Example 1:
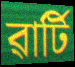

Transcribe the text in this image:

ৱাৰ্টি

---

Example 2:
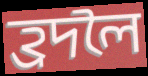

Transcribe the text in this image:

হ্ৰদলৈ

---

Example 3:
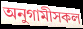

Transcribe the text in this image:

অনুগামীসকল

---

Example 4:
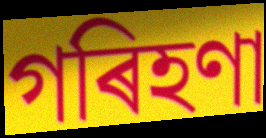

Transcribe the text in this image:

গৰিহণা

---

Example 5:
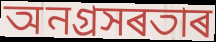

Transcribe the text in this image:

অনগ্ৰসৰতাৰ